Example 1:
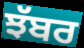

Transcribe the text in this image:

ਝੱਬਰ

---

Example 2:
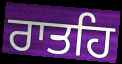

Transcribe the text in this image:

ਰਾਤਹਿ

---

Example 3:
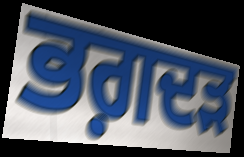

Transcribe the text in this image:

ਭਗ਼ਦੜ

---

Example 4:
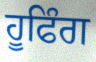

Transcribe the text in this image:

ਹੂਫਿੰਗ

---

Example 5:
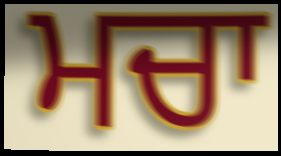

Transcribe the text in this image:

ਮਚਾ